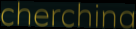
cherchina